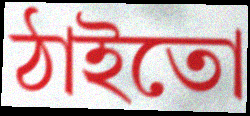
ঠাইতো